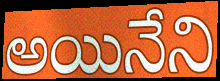
అయినేని